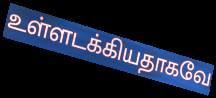
உள்ளடக்கியதாகவே